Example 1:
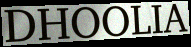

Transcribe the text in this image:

DHOOLIA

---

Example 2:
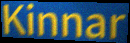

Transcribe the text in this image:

Kinnar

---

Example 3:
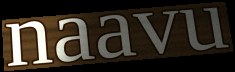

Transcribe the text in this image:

naavu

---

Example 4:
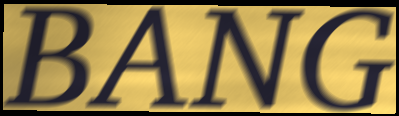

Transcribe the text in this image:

BANG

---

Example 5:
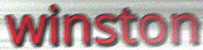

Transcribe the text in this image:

winston